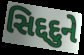
સિદ્દદુને